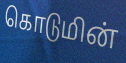
கொடுமின்